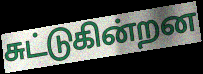
சுட்டுகின்றன